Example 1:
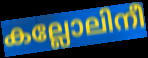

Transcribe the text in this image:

കല്ലോലിനീ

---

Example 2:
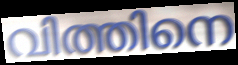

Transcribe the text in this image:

വിത്തിനെ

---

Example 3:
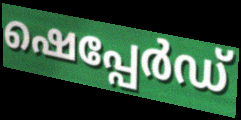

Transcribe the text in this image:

ഷെപ്പേർഡ്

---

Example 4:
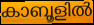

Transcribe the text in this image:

കാബൂളിൽ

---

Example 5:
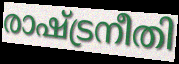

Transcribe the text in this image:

രാഷ്ട്രനീതി